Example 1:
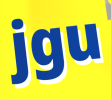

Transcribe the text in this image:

jgu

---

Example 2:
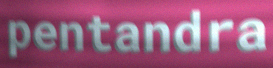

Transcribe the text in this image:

pentandra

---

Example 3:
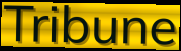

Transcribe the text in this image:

Tribune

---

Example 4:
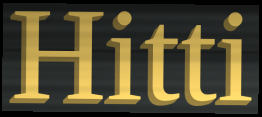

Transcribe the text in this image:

Hitti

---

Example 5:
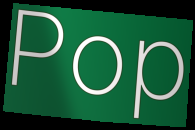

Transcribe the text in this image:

Pop